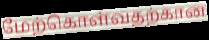
மேற்கொள்வதற்கான